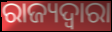
ରାଜ୍ୟଦ୍ୱାରା